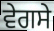
ਵੇਗਸੇ